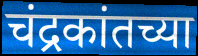
चंद्रकांतच्या